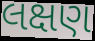
લક્ષણ